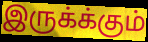
இருக்க்கும்